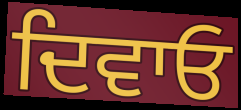
ਦਿਵਾਓ